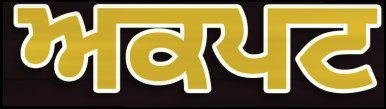
ਅਕਪਟ